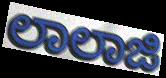
ಲಾಲಾಜಿ